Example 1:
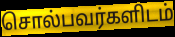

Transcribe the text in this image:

சொல்பவர்களிடம்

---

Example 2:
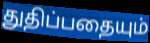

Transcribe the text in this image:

துதிப்பதையும்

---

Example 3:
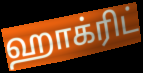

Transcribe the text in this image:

ஹாக்ரிட்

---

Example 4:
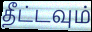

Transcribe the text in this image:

தீட்டவும்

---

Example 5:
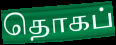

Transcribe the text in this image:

தொகப்